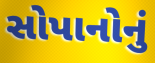
સોપાનોનું